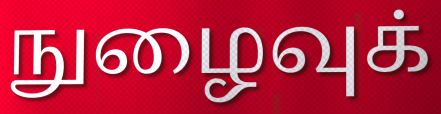
நுழைவுக்